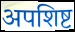
अपशिष्ट